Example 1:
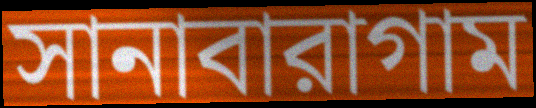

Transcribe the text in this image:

সানাবারাগাম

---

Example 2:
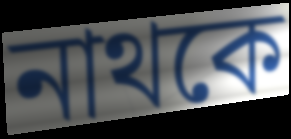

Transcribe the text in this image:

নাথকে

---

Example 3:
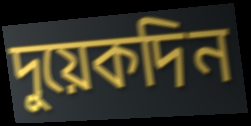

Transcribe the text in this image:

দুয়েকদিন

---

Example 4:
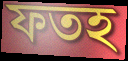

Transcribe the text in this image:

ফতহ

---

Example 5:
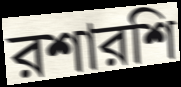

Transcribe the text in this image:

রশারশি